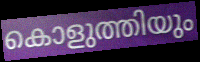
കൊളുത്തിയും